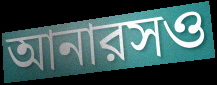
আনারসও